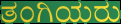
ತಂಗಿಯರು